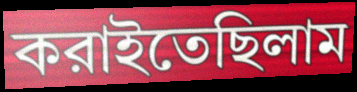
করাইতেছিলাম